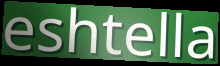
eshtella